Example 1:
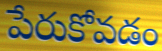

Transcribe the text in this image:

పేరుకోవడం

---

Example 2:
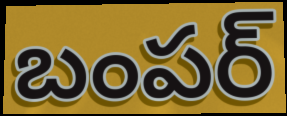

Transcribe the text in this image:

బంపర్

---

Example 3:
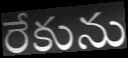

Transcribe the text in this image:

రేకును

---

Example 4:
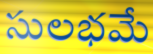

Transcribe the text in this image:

సులభమే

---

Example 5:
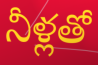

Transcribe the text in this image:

నీళ్లతో